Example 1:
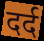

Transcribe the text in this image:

दर्द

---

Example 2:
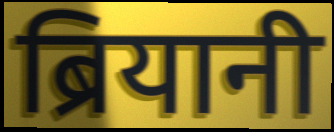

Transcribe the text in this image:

ब्रियानी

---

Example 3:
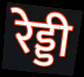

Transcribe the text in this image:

रेड्डी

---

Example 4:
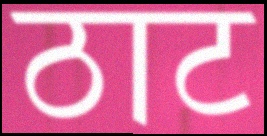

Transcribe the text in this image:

ठाट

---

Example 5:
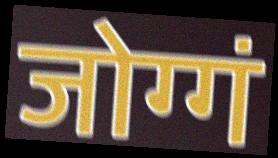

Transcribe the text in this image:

जोग्गं